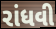
રાંધવી